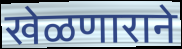
खेळणाराने